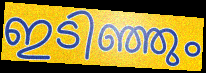
ഇടിഞ്ഞും